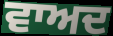
ਵਾਅਦ